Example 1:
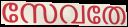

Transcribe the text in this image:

സേവതേ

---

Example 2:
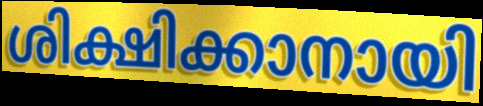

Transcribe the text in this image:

ശിക്ഷിക്കാനായി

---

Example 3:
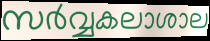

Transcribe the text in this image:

സർവ്വകലാശാല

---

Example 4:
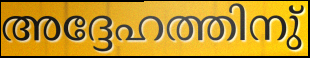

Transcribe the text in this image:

അദ്ദേഹത്തിനു്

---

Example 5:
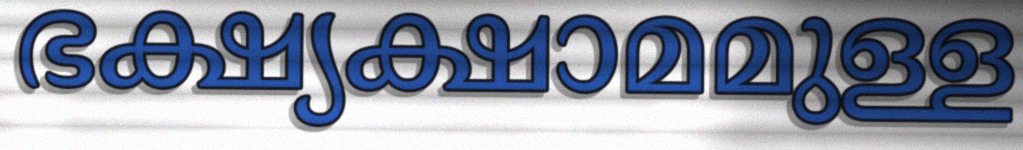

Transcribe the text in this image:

ഭക്ഷ്യക്ഷാമമുള്ള